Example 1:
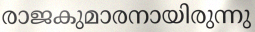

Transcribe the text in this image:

രാജകുമാരനായിരുന്നു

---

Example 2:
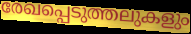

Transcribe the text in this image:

രേഖപ്പെടുത്തലുകളും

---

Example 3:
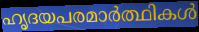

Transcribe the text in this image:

ഹൃദയപരമാർത്ഥികൾ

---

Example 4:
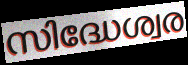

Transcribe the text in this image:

സിദ്ധേശ്വര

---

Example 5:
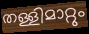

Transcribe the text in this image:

തള്ളിമാറ്റും